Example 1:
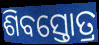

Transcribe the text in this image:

ଶିବସ୍ତୋତ୍ର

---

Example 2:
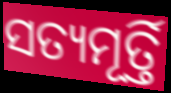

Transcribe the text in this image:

ସତ୍ୟମୂର୍ତ୍ତି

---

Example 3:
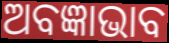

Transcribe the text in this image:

ଅବଜ୍ଞାଭାବ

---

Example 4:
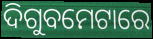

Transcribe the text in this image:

ଦିଗୁବମେଟାରେ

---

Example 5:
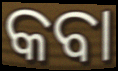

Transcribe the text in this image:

କବା